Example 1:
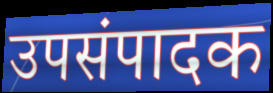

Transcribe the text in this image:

उपसंपादक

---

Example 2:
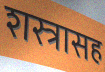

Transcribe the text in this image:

शस्त्रासह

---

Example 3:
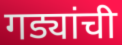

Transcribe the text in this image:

गड्यांची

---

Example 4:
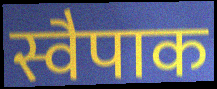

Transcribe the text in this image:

स्वैपाक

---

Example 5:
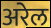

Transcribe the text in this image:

अरेल